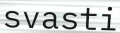
svasti